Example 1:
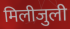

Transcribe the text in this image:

मिलीजुली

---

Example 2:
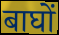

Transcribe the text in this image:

बाघों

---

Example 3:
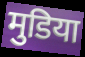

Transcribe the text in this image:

मुडिया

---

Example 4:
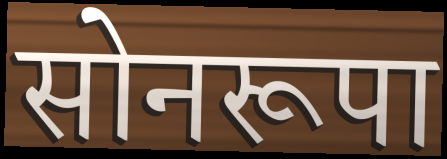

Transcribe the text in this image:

सोनरूपा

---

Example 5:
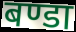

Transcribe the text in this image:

बण्डा